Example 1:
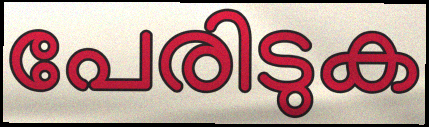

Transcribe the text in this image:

പേരിടുക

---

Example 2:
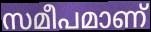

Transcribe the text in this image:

സമീപമാണ്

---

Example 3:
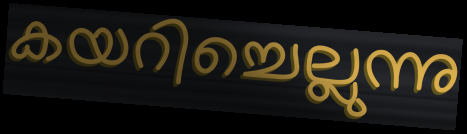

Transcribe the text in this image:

കയറിച്ചെല്ലുന്നു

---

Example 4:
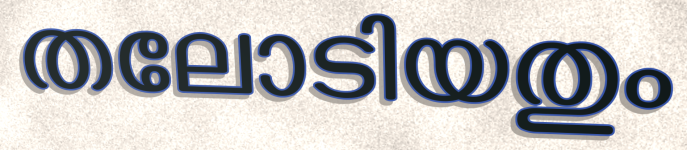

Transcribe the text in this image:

തലോടിയതും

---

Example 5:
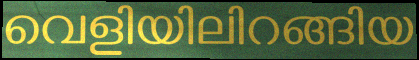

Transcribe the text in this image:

വെളിയിലിറങ്ങിയ